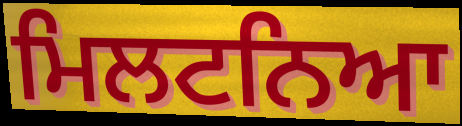
ਮਿਲਟਨਿਆ